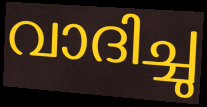
വാദിച്ചു